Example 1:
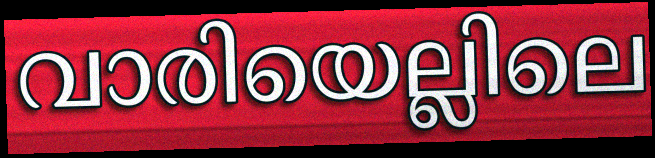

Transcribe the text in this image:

വാരിയെല്ലിലെ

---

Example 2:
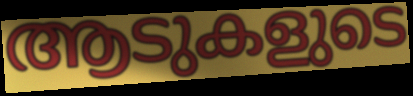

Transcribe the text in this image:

ആടുകളുടെ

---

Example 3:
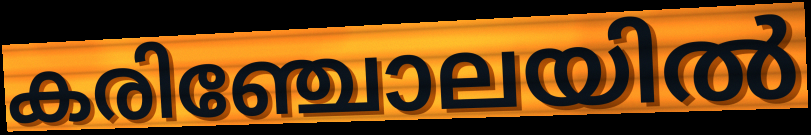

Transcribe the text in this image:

കരിഞ്ചോലയിൽ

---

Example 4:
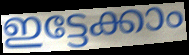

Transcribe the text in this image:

ഇട്ടേക്കാം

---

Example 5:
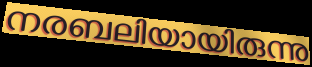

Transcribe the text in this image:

നരബലിയായിരുന്നു